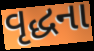
વૃદ્ધના